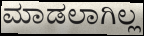
ಮಾಡಲಾಗಿಲ್ಲ